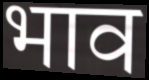
भाव